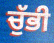
ਚੁੱਭੀ